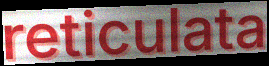
reticulata